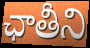
ఛాతీని